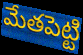
మేతపెట్టి